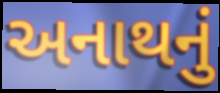
અનાથનું